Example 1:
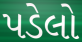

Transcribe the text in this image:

પડેલો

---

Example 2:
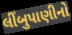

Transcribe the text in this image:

લીંબુપાણીનો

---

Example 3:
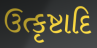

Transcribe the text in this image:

ઉત્કૃષ્ટાદિ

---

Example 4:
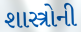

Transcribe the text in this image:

શાસ્ત્રોની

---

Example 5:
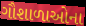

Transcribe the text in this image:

ગૌશાળાઓના